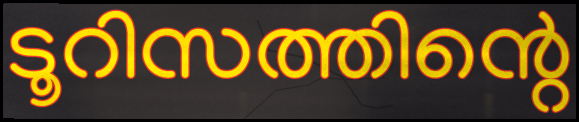
ടൂറിസത്തിന്റെ